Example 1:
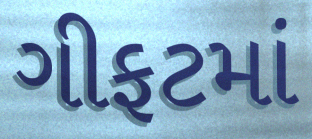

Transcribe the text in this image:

ગીફટમાં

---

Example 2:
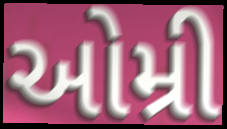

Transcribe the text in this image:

ઓમ્રી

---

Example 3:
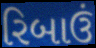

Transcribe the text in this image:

રિબાઉં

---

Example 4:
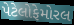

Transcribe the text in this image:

પેટેલોફેમોરલ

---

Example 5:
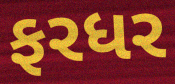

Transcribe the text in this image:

ફરધર